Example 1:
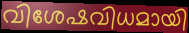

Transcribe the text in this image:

വിശേഷവിധമായി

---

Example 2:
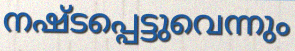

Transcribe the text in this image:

നഷ്ടപ്പെട്ടുവെന്നും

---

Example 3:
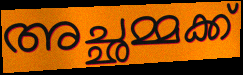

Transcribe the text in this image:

അച്ഛമ്മക്ക്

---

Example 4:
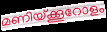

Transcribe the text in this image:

മണിയ്ക്കൂറോളം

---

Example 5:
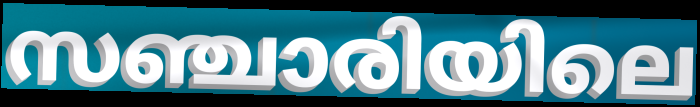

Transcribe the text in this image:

സഞ്ചാരിയിലെ